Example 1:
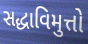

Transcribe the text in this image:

સદ્ધાવિમુત્તો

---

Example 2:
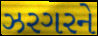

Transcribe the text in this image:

ઝરગરને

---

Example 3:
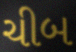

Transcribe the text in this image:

ચીબ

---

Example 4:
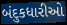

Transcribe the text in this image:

બંદુકધારીઓ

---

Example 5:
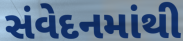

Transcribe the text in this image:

સંવેદનમાંથી